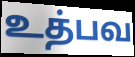
உத்பவ